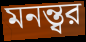
মনন্ত্বর